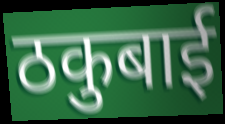
ठकुबाई